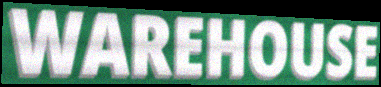
WAREHOUSE